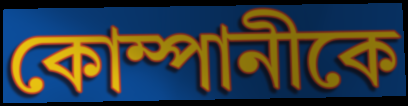
কোম্পানীকে